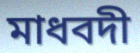
মাধবদী